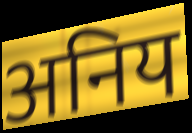
अनिय